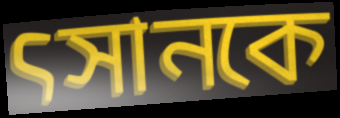
ৎসানকে